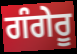
ਗੰਗੇਰੂ